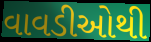
વાવડીઓથી